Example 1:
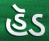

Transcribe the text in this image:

હૅડ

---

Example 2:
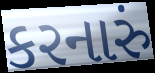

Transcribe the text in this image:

કરનારું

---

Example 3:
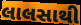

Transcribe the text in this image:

લાલસાથી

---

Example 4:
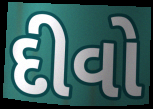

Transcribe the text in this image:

દીવો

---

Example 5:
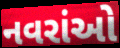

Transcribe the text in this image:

નવરાંઓ